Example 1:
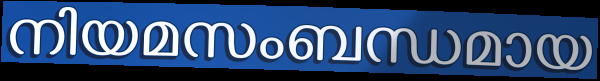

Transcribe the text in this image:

നിയമസംബന്ധമായ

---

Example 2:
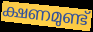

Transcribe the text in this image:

ക്ഷണമുണ്ട്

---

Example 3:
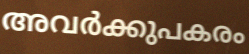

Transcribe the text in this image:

അവർക്കുപകരം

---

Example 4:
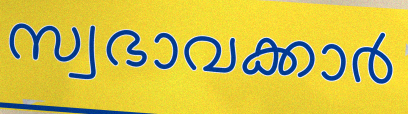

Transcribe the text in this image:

സ്വഭാവക്കാർ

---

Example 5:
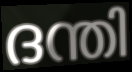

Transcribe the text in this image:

ദന്തി